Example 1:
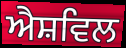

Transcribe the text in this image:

ਐਸ਼ਵਿਲ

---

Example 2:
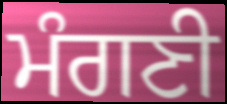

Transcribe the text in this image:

ਮੰਗਣੀ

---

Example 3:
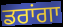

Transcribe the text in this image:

ਡਰਾਂਗਾ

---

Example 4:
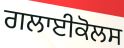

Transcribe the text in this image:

ਗਲਾਈਕੋਲਸ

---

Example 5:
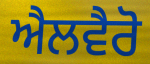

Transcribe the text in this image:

ਐਲਵੈਰੋ